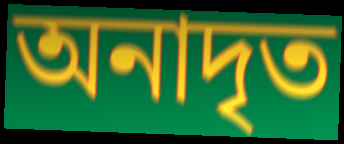
অনাদৃত